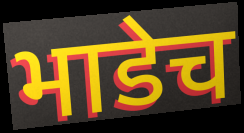
भाडेच